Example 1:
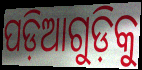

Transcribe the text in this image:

ପଡ଼ିଆଗୁଡ଼ିକୁ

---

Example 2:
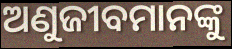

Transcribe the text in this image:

ଅଣୁଜୀବମାନଙ୍କୁ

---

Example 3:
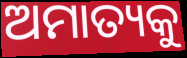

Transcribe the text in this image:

ଅମାତ୍ୟକୁ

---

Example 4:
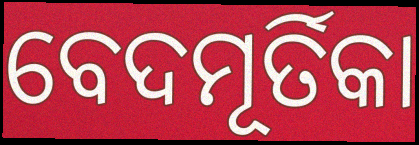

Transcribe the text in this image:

ବେଦମୂର୍ତିକା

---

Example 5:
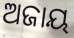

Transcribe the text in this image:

ଅଜାୟ